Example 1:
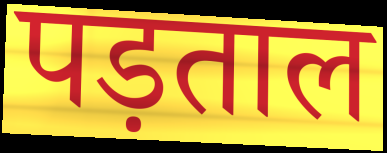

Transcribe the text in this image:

पड़ताल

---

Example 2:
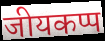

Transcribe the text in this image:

जीयकप्प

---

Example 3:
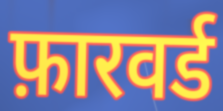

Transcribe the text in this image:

फ़ारवर्ड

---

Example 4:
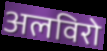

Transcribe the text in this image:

अलविरो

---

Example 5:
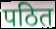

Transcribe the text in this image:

पठित